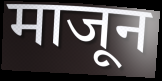
माजून